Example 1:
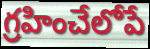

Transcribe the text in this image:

గ్రహించేలోపే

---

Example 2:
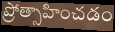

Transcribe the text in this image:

ప్రోత్సాహించడం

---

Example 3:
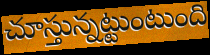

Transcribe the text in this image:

చూస్తున్నట్టుంటుంది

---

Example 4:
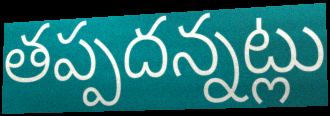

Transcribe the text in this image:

తప్పదన్నట్లు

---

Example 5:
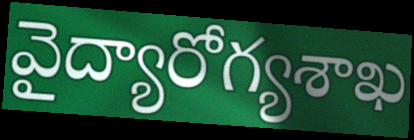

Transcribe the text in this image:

వైద్యారోగ్యశాఖ